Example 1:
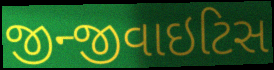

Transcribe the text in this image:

જીન્જીવાઇટિસ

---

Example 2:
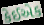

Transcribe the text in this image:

કેઈએક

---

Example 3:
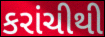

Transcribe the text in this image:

કરાંચીથી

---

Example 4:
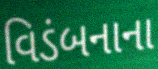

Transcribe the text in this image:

વિડંબનાના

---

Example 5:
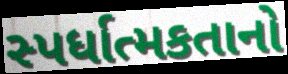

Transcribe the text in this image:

સ્પર્ધાત્મકતાનો